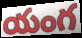
యంగ